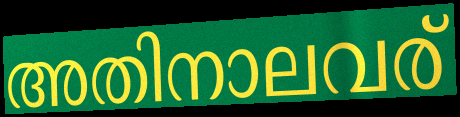
അതിനാലവര്